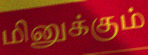
மினுக்கும்